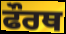
ਫੌਰਥ